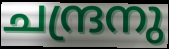
ചന്ദ്രനു